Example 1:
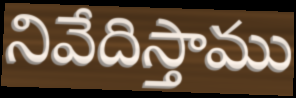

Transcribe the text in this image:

నివేదిస్తాము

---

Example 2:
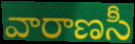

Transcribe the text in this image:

వారాణసీ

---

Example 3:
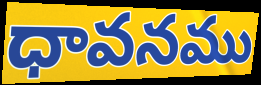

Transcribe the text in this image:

ధావనము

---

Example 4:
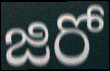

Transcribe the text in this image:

జిరో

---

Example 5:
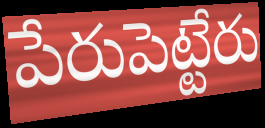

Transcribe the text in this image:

పేరుపెట్టేరు